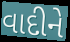
વાદીને